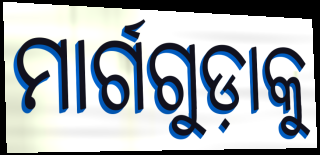
ମାର୍ଗଗୁଡ଼ାକୁ